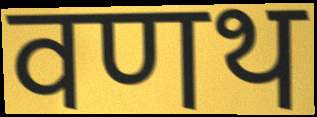
वणथ